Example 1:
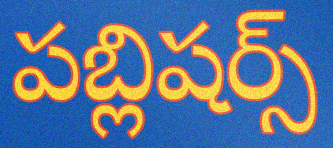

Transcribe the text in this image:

పబ్లిషర్స్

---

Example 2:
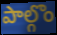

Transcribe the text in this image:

పాల్గొం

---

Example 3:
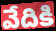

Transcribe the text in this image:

వేదికి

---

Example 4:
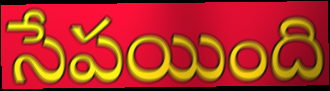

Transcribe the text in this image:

సేపయింది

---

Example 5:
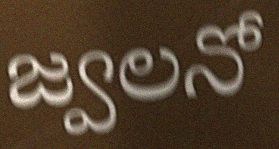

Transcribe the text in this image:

జ్వలనో